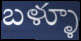
బళ్ళూ